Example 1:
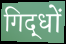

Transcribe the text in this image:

गिद्धों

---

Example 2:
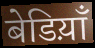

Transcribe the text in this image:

बेडिय़ाँ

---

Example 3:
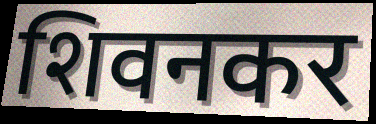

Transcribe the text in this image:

शिवनकर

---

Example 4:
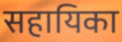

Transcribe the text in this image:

सहायिका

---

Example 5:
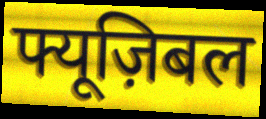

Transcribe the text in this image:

फ्यूज़िबल